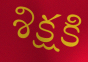
శిక్షకి